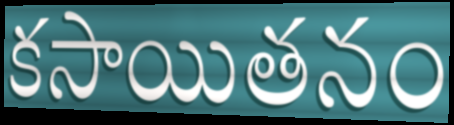
కసాయితనం